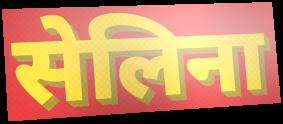
सेलिना